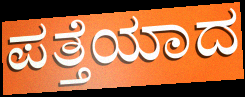
ಪತ್ತೆಯಾದ